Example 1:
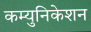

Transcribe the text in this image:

कम्युनिकेशन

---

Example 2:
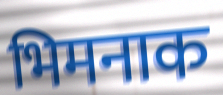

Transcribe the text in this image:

भिमनाक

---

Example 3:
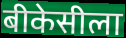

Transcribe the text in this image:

बीकेसीला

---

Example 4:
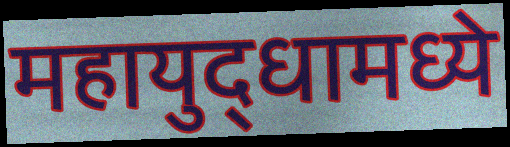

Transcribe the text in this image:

महायुद्धामध्ये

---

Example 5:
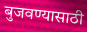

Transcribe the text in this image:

बुजवण्यासाठी